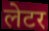
लेटर